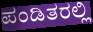
ಪಂಡಿತರಲ್ಲಿ